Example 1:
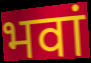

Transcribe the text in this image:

भवां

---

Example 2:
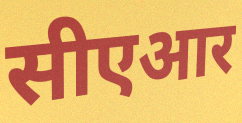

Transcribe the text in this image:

सीएआर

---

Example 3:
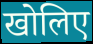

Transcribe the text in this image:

खोलिए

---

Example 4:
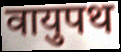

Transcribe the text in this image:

वायुपथ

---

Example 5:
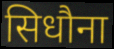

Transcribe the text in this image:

सिधौना